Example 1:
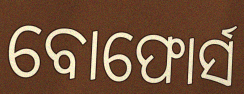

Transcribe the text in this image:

ବୋଫୋର୍ସ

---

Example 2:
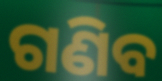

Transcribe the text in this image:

ଗଣିବ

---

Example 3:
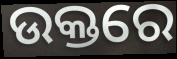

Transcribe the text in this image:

ଉକ୍ତରେ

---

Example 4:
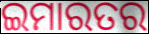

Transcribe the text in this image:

ଇମାରତର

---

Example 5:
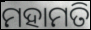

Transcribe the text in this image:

ମହାମତି